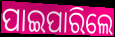
ପାଇପାରିଲେ